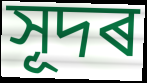
সূদৰ